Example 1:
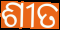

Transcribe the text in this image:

ଶୀତ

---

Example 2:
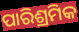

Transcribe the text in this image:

ପାରିଶ୍ରମିକ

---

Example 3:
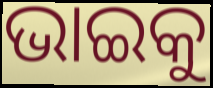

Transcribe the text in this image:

ଭାଇକୁ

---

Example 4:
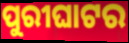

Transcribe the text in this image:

ପୁରୀଘାଟର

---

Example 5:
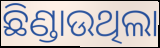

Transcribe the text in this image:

ଛିଣ୍ଡାଉଥିଲା